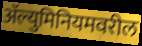
ॲल्युमिनियमवरील